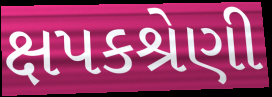
ક્ષપકશ્રેણી